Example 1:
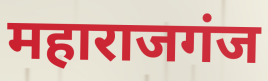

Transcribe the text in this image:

महाराजगंज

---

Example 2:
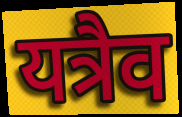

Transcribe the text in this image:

यत्रैव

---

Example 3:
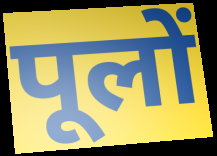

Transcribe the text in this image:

पूलों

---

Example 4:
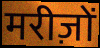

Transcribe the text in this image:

मरीज़ों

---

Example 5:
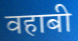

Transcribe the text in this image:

वहाबी